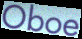
Oboe